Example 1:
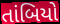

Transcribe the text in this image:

તાંબિયો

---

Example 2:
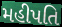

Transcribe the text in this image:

મહીપતિ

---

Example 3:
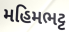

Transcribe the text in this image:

મહિમભટ્ટ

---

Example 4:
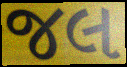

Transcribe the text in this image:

જલ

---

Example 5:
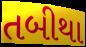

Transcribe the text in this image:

તબીથા